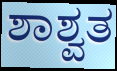
ಶಾಶ್ವತ